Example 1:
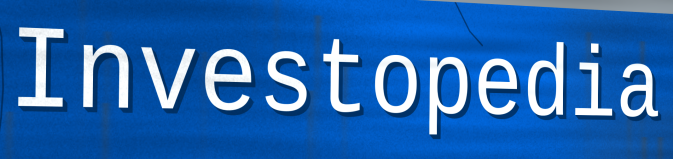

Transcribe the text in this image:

Investopedia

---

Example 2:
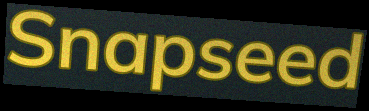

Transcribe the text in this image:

Snapseed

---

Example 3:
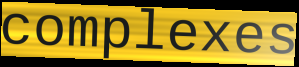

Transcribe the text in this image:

complexes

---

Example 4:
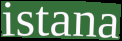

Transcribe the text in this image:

istana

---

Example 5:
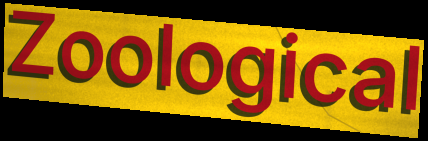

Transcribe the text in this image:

Zoological